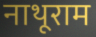
नाथूराम